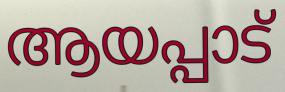
ആയപ്പാട്